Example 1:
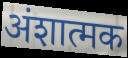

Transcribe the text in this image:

अंशात्मक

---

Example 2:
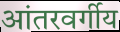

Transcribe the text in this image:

आंतरवर्गीय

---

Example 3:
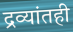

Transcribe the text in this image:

द्रव्यांतही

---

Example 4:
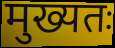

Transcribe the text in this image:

मुख्यतः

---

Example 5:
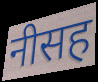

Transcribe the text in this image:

नीसह